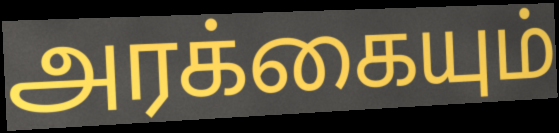
அரக்கையும்